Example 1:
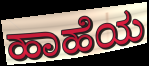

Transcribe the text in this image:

ಹಾಹೆಯ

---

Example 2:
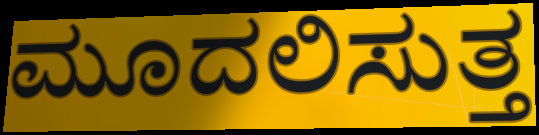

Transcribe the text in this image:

ಮೂದಲಿಸುತ್ತ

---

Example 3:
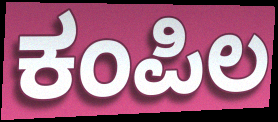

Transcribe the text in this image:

ಕಂಪಿಲ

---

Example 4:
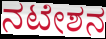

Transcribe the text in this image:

ನಟೇಶನ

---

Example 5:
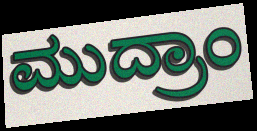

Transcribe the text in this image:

ಮುದ್ರಾಂ